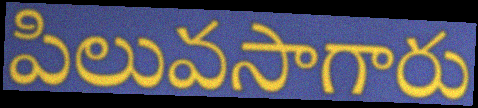
పిలువసాగారు